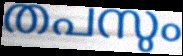
തപസും